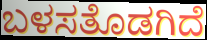
ಬಳಸತೊಡಗಿದೆ